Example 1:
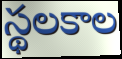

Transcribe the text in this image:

స్థలకాల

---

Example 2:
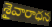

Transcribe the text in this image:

శైవారాధన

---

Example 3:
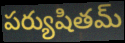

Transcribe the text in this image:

పర్యుషితమ్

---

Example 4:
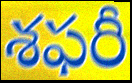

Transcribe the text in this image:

శఫరీ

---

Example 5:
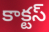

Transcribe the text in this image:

కాక్టస్